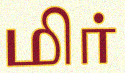
மிர்